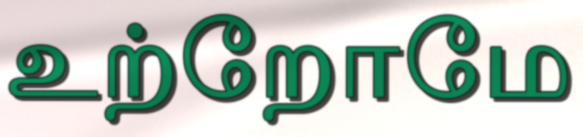
உற்றோமே